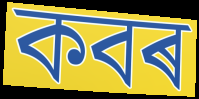
কবৰ